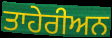
ਤਾਹੇਰੀਅਨ